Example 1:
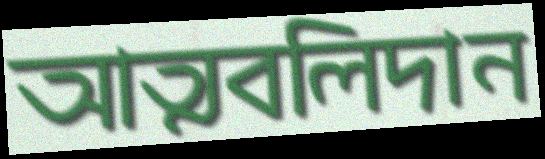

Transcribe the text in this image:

আত্মবলিদান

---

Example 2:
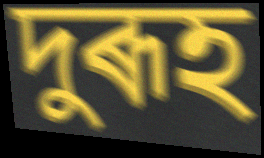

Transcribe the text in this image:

দুৰূহ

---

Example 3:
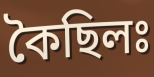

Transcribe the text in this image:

কৈছিলঃ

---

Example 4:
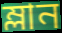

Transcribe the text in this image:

ম্লান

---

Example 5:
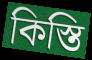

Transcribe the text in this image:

কিস্তি